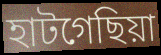
হাটগেছিয়া